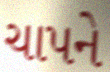
ચાપને